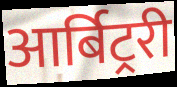
आर्बिट्ररी